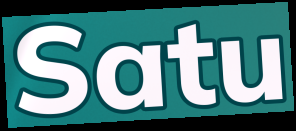
Satu